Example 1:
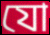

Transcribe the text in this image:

যো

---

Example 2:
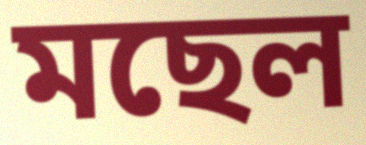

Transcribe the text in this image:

মছেল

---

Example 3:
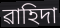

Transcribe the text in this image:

ৱাহিদা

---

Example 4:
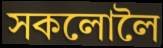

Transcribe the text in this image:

সকলোলৈ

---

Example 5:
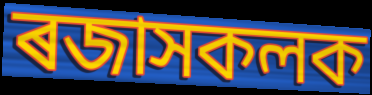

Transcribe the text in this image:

ৰজাসকলক